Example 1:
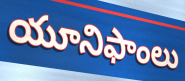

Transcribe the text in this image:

యూనిఫాంలు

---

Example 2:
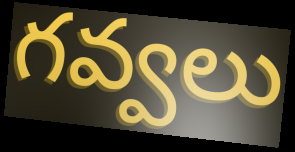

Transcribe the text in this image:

గవ్వలు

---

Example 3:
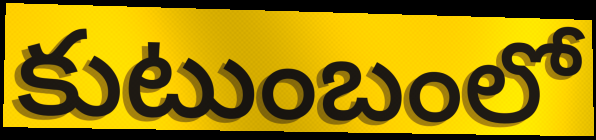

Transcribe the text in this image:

కుటుంబంలో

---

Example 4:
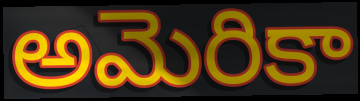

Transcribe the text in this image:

అమెరికా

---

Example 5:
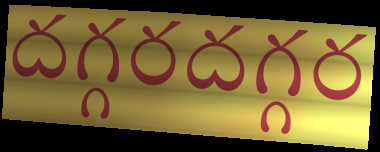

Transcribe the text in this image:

దగ్గరదగ్గర